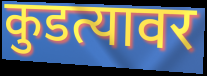
कुडत्यावर